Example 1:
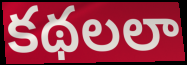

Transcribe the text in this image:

కథలలా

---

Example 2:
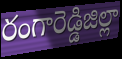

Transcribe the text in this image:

రంగారెడ్డిజిల్లా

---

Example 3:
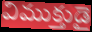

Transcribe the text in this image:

విముక్తుడై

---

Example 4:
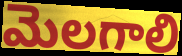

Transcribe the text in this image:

మెలగాలి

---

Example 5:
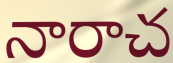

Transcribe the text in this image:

నారాచ